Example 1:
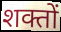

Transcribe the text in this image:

शक्तों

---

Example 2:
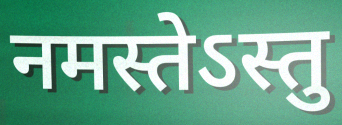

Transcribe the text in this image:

नमस्तेऽस्तु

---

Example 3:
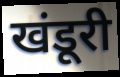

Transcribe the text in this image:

खंडूरी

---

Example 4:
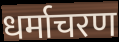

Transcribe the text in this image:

धर्माचरण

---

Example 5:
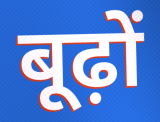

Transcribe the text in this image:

बूढ़ों